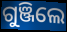
ଗୁଞ୍ଜିଲେ